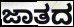
ಜಾತದ